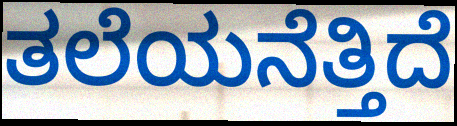
ತಲೆಯನೆತ್ತಿದೆ